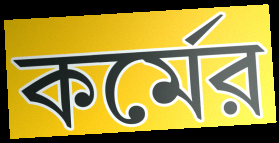
কর্মের